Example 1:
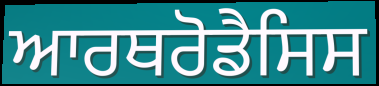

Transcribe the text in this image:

ਆਰਥਰੋਡੈਸਿਸ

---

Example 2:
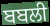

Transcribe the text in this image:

ਬਬਲੀ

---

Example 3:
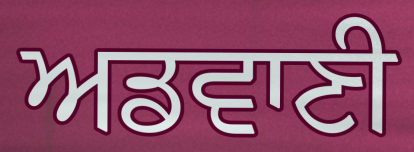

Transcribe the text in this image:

ਅਡਵਾਣੀ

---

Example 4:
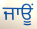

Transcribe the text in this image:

ਜਾਊਂ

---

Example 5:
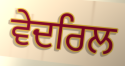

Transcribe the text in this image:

ਵੇਦਰਿਲ